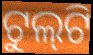
ଟୁଲ୍‌ଟି